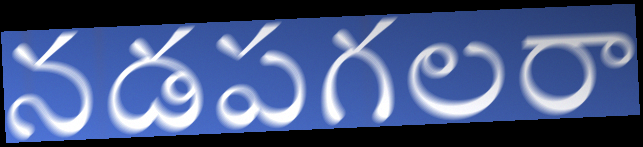
నడపగలరా